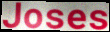
Joses